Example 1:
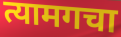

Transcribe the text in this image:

त्यामगचा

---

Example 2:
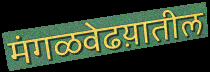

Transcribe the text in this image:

मंगळवेढय़ातील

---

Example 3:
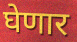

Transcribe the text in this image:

घेणार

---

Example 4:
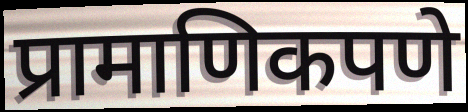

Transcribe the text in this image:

प्रामाणिकपणे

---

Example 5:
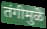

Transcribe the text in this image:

तंगीमुळे